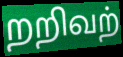
றறிவற்